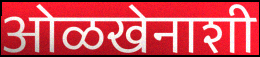
ओळखेनाशी